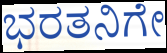
ಭರತನಿಗೇ